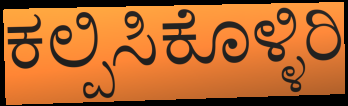
ಕಲ್ಪಿಸಿಕೊಳ್ಳಿರಿ